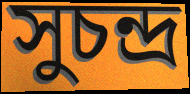
সুচন্দ্র